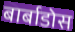
बार्बाडोस